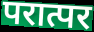
परात्पर